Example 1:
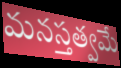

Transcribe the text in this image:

మనస్తత్వమే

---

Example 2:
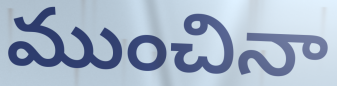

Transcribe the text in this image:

ముంచినా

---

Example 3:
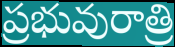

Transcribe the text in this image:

ప్రభువురాత్రి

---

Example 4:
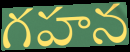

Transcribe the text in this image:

గహన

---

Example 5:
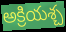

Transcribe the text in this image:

అక్రియశ్చ